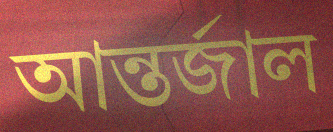
আন্তর্জাল